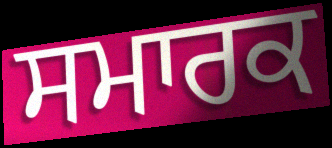
ਸਮਾਰਕ